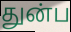
துன்ப